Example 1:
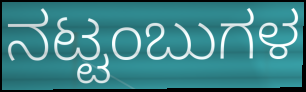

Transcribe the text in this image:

ನಟ್ಟಂಬುಗಳ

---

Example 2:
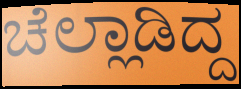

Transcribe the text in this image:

ಚೆಲ್ಲಾಡಿದ್ದ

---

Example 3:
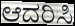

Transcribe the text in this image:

ಆದರಿಸಿ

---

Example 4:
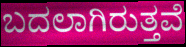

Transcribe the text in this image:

ಬದಲಾಗಿರುತ್ತವೆ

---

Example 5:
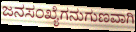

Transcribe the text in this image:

ಜನಸಂಖ್ಯೆಗನುಗುಣವಾಗಿ